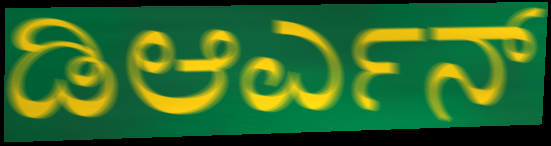
ಡಿಆರ್ಎನ್